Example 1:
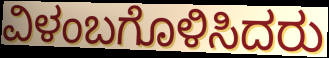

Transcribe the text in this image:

ವಿಳಂಬಗೊಳಿಸಿದರು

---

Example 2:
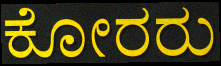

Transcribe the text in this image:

ಕೋರರು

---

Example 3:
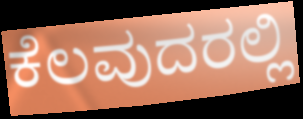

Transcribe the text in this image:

ಕೆಲವುದರಲ್ಲಿ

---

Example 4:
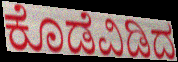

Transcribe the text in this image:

ಕೊಡೆವಿಡಿದ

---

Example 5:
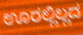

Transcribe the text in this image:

ಊರಲ್ಲಿಲ್ಲದ